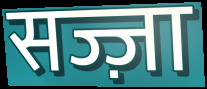
सज्ज़ा